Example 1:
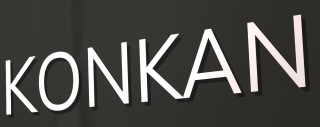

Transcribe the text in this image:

KONKAN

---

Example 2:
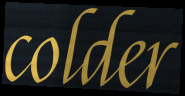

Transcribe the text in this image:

colder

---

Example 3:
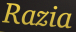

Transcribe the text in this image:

Razia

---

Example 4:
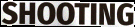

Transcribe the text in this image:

SHOOTING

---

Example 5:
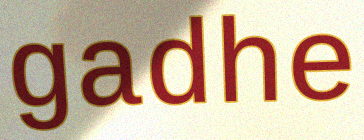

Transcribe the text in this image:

gadhe